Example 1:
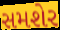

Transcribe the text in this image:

સમશેર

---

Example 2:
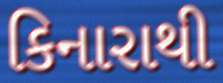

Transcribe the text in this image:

કિનારાથી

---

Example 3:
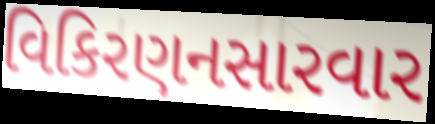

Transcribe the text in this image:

વિકિરણનસારવાર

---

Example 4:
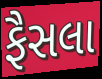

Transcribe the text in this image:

ફૈસલા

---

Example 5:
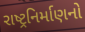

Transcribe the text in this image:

રાષ્ટ્રનિર્માણનો